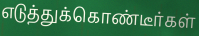
எடுத்துக்கொண்டீர்கள்